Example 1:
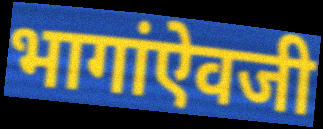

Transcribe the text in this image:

भागांऐवजी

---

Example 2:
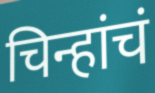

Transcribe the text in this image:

चिन्हांचं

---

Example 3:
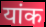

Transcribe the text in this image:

यांक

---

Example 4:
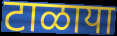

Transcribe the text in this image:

टाळाया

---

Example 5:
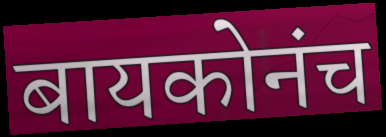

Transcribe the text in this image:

बायकोनंच